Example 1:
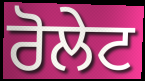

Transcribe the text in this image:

ਰੋਲੇਟ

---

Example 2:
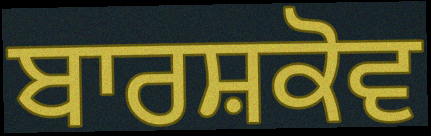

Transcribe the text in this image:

ਬਾਰਸ਼ਕੋਵ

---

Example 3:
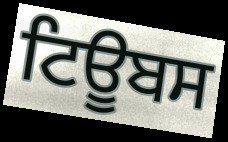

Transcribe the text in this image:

ਟਿਊਬਸ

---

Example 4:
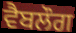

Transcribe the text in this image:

ਵੈਬਲੌਗ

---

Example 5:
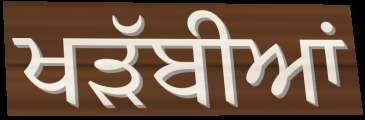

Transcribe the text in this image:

ਖੜੱਬੀਆਂ